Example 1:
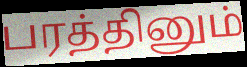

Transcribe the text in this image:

பரத்தினும்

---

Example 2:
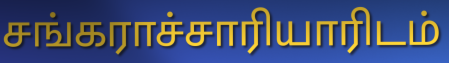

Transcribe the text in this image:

சங்கராச்சாரியாரிடம்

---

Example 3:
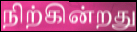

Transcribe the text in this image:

நிற்கின்றது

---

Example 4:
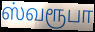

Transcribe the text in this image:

ஸ்வரூபா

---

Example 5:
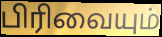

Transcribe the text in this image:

பிரிவையும்